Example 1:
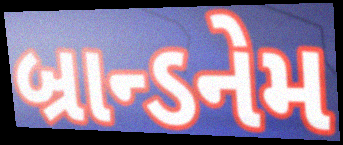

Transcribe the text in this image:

બ્રાન્ડનેમ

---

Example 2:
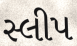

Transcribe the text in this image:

સ્લીપ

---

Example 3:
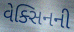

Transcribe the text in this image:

વેક્સિનની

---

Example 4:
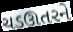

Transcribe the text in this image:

ચડઊતરને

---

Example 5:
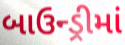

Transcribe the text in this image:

બાઉન્ડ્રીમાં